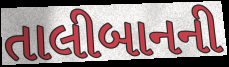
તાલીબાનની